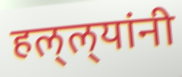
हल्ल्यांनी